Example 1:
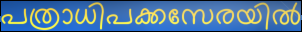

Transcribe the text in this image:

പത്രാധിപക്കസേരയിൽ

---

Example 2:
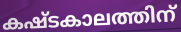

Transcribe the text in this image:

കഷ്ടകാലത്തിന്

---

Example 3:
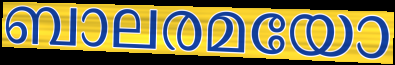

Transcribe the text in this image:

ബാലരമയോ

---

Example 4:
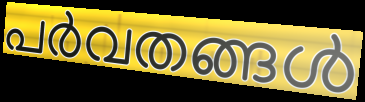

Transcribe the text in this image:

പർവതങ്ങൾ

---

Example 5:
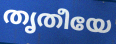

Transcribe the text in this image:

തൃതീയേ